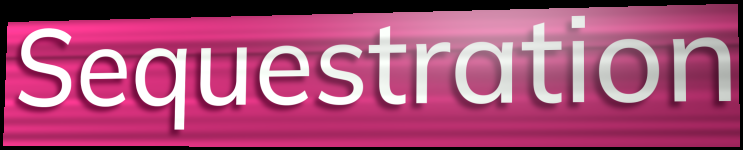
Sequestration